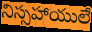
నిస్సహాయులే